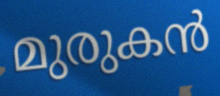
മുരുകൻ